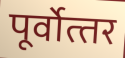
पूर्वोत्‍तर